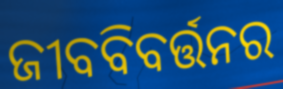
ଜୀବବିବର୍ତ୍ତନର